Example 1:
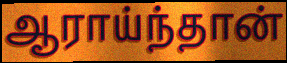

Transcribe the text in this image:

ஆராய்ந்தான்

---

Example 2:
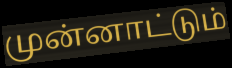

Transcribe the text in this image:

முன்னாட்டும்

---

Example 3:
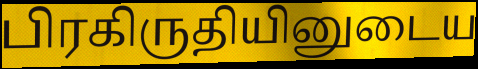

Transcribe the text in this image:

பிரகிருதியினுடைய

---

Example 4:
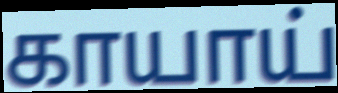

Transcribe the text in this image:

காயாய்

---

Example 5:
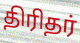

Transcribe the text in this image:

திரிதர்